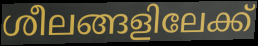
ശീലങ്ങളിലേക്ക്